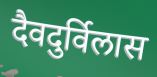
दैवदुर्विलास